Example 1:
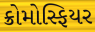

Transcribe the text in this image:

ક્રોમોસ્ફિયર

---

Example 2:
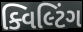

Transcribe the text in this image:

ક્વિલ્ટિંગ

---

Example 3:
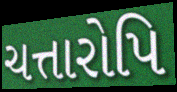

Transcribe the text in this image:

ચત્તારોપિ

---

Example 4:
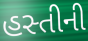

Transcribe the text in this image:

હસ્તીની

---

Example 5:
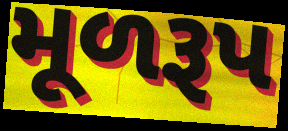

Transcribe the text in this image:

મૂળરૂપ